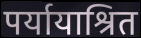
पर्यायाश्रित